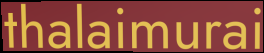
thalaimurai